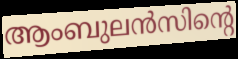
ആംബുലൻസിന്റെ